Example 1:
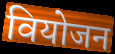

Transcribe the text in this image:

वियोजन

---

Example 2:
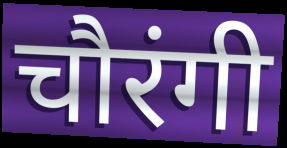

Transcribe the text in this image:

चौरंगी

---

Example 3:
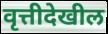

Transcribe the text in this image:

वृत्तीदेखील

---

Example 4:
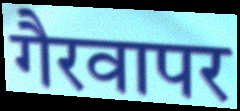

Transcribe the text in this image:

गैरवापर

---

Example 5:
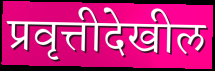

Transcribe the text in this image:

प्रवृत्तीदेखील